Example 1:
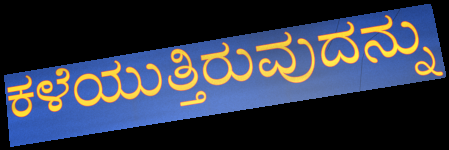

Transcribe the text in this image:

ಕಳೆಯುತ್ತಿರುವುದನ್ನು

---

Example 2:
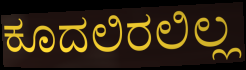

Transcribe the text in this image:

ಕೂದಲಿರಲಿಲ್ಲ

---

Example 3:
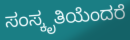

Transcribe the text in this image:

ಸಂಸ್ಕೃತಿಯೆಂದರೆ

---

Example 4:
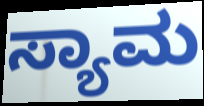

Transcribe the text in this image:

ಸ್ಯಾಮ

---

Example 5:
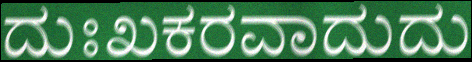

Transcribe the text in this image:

ದುಃಖಕರವಾದುದು